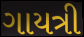
ગાયત્રી